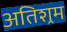
अतिश्रम